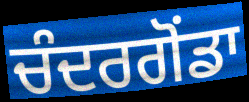
ਚੰਦਰਗੋਂਡਾ